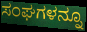
ಸಂಘಗಳನ್ನೂ